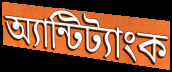
অ্যান্টিট্যাংক